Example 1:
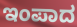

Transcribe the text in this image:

ಇಂಪಾದ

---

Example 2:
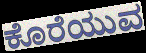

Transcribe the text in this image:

ಕೊರೆಯುವ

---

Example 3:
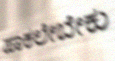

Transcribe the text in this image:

ಹಾಕಲೇಬೇಕು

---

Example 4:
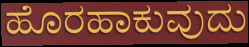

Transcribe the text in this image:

ಹೊರಹಾಕುವುದು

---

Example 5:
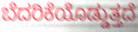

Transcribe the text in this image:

ಬೆದರಿಕೆಯೊಡ್ಡುತ್ತದೆ